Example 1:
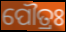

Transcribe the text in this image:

ପୌତ୍ରଃ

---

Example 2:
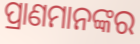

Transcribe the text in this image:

ପ୍ରାଣମାନଙ୍କର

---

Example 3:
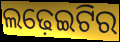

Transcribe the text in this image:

ଲଢ଼େଇଟିର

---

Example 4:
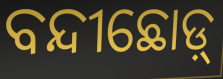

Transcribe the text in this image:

ବନ୍ଦୀଛୋଡ଼୍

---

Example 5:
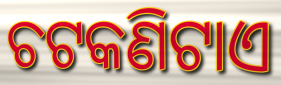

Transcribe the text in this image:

ଚଟକଣିଟାଏ